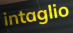
intaglio